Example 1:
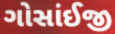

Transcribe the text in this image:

ગોસાંઈજી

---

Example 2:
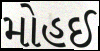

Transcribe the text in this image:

મોહઈ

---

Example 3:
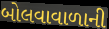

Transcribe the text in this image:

બોલવાવાળાની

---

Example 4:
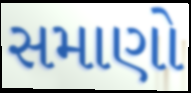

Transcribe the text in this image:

સમાણો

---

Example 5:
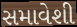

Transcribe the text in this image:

સમાવેશી